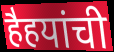
हैहयांची